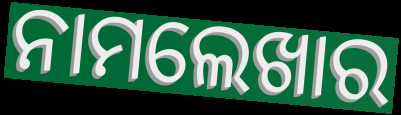
ନାମଲେଖାର